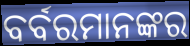
ବର୍ବରମାନଙ୍କର